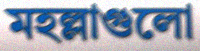
মহল্লাগুলো